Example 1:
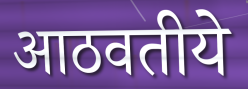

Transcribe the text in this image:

आठवतीये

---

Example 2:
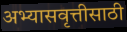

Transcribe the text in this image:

अभ्यासवृत्तीसाठी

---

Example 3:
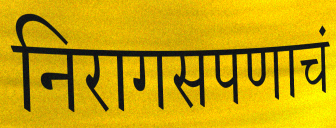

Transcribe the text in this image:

निरागसपणाचं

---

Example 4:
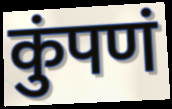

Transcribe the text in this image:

कुंपणं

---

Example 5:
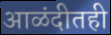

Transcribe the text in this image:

आळंदीतही